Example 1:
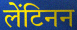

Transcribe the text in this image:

लेंटिनन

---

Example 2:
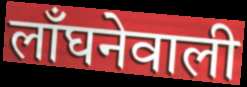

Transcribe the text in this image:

लाँघनेवाली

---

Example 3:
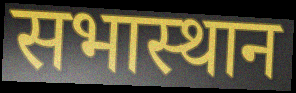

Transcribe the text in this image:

सभास्थान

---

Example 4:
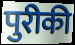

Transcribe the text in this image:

पुरीकी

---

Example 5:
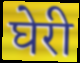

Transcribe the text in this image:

घेरी